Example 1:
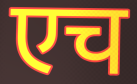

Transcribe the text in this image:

एच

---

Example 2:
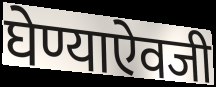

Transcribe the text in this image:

घेण्याऐवजी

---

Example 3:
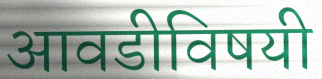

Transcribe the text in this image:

आवडीविषयी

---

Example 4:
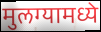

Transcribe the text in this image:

मुलग्यामध्ये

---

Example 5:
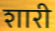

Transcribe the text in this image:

शारी